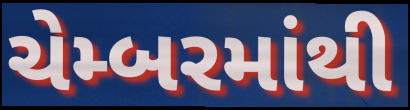
ચેમ્બરમાંથી